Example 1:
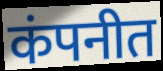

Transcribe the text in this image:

कंपनीत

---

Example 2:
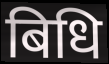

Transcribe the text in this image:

बिधि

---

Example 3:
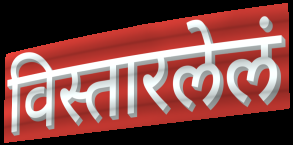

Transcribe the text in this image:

विस्तारलेलं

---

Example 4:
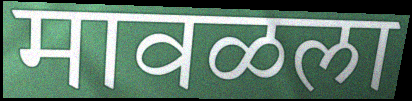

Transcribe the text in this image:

मावळला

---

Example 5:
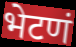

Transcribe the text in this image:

भेटणं